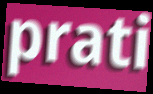
prati